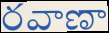
రవాణా